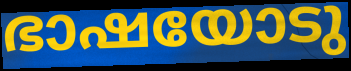
ഭാഷയോടു